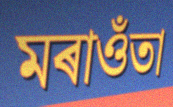
মৰাওঁতা